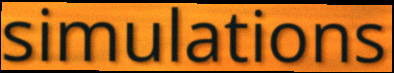
simulations